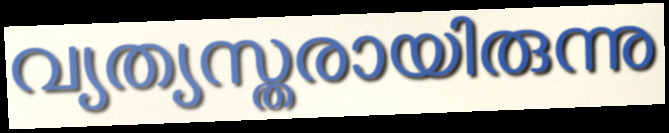
വ്യത്യസ്തരായിരുന്നു